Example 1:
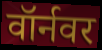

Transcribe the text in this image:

वॉर्नवर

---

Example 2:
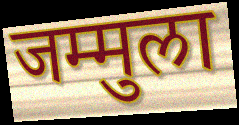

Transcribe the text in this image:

जम्मुला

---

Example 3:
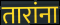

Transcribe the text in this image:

तारांना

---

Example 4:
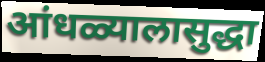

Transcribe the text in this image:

आंधळ्यालासुद्धा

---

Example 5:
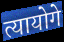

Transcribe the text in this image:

त्यायोगे